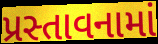
પ્રસ્તાવનામાં